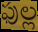
ఫుల్ల